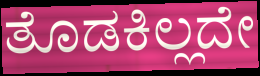
ತೊಡಕಿಲ್ಲದೇ